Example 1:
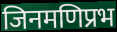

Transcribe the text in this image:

जिनमणिप्रभ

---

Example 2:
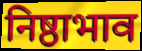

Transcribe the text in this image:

निष्ठाभाव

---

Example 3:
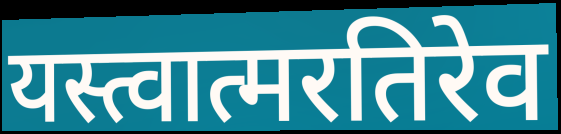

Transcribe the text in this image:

यस्त्वात्मरतिरेव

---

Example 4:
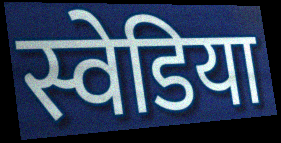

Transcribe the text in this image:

स्वेडिया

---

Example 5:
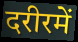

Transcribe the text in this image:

दरीरमें